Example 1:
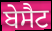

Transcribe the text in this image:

ਬੇਸੈਟ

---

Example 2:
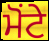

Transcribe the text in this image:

ਮੋਂਟੇ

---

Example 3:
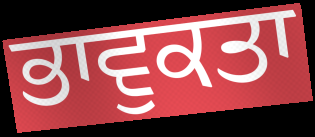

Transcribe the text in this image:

ਭਾਵੁਕਤਾ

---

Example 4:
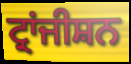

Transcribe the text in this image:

ਟ੍ਰਾਂਜੀਸ਼ਨ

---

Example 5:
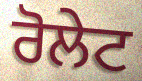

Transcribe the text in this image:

ਰੋਲੇਟ